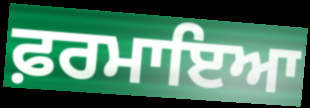
ਫ਼ਰਮਾਇਆ